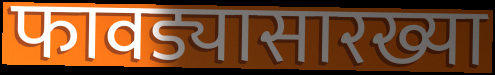
फावड्यासारख्या